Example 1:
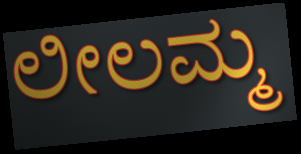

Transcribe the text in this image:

ಲೀಲಮ್ಮ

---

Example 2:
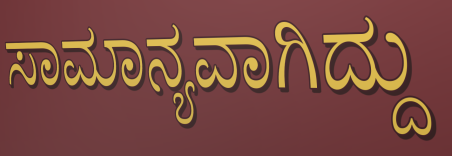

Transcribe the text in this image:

ಸಾಮಾನ್ಯವಾಗಿದ್ದು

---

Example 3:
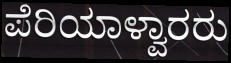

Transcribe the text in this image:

ಪೆರಿಯಾಳ್ವಾರರು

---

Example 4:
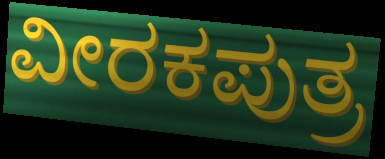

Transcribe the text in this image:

ವೀರಕಪುತ್ರ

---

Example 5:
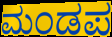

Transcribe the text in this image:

ಮಂಡಪ